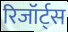
रिजॉर्ट्स